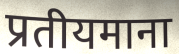
प्रतीयमाना